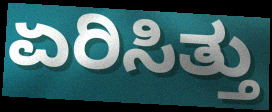
ಏರಿಸಿತ್ತು